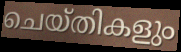
ചെയ്തികളും